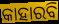
କାହାରବି